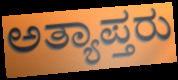
ಅತ್ಯಾಪ್ತರು